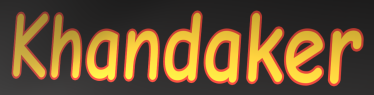
Khandaker